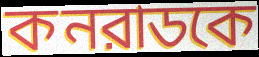
কনরাডকে